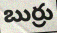
బుర్రు